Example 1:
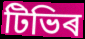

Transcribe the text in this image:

টিভিৰ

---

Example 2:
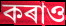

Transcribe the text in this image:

কৰাও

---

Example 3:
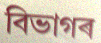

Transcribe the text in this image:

বিভাগৰ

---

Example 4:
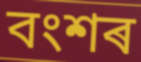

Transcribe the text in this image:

বংশৰ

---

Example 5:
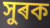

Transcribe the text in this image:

সুৰক